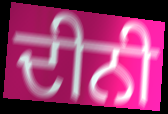
ਦੀਨੀ